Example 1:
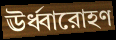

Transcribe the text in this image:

ঊর্ধ্বারোহণ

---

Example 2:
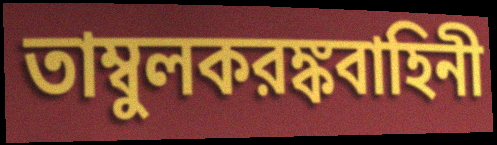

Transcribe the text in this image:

তাম্বুলকরঙ্কবাহিনী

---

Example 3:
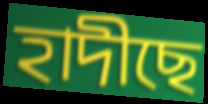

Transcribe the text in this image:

হাদীছে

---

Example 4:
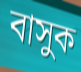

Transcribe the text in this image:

বাসুক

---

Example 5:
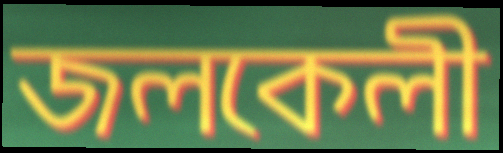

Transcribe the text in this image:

জলকেলী